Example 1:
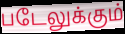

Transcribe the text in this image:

படேலுக்கும்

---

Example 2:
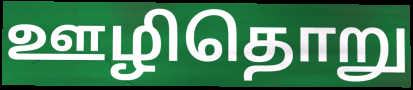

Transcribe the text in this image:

ஊழிதொறு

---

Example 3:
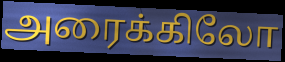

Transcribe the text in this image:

அரைக்கிலோ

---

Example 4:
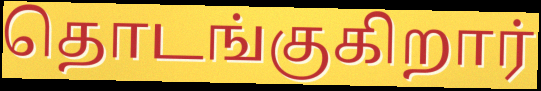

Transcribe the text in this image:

தொடங்குகிறார்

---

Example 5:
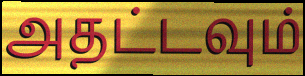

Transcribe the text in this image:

அதட்டவும்